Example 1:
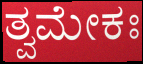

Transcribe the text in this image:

ತ್ವಮೇಕಃ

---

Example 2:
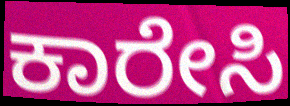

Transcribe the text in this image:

ಕಾರೇಸಿ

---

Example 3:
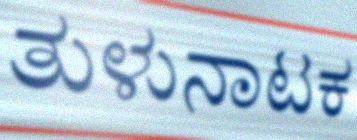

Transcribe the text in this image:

ತುಳುನಾಟಕ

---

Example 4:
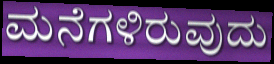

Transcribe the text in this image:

ಮನೆಗಳಿರುವುದು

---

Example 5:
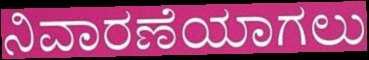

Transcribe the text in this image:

ನಿವಾರಣೆಯಾಗಲು